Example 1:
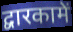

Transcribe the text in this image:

द्वारकामें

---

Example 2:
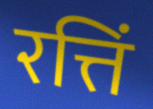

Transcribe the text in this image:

रत्तिं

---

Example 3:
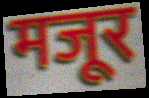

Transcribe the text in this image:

मजूर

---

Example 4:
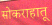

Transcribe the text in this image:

सोकराहातू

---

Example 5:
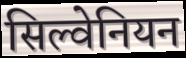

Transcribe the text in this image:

सिल्वेनियन